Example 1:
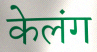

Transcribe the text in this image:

केलंग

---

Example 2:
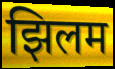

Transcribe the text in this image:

झिलम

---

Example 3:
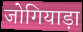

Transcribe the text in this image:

जोगियाड़ा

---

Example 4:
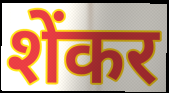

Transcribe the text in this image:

शेंकर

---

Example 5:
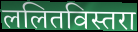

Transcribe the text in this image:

ललितविस्तरा